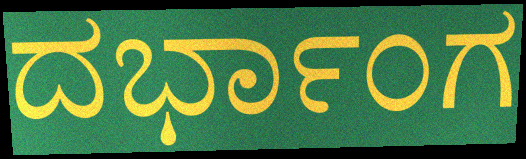
ದರ್ಭಾಂಗ